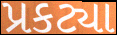
પ્રકટ્યા